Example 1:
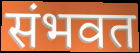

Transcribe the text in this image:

संभवत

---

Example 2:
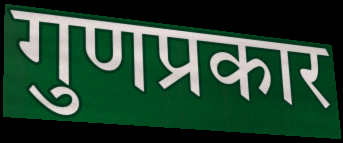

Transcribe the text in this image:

गुणप्रकार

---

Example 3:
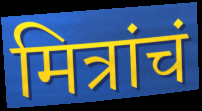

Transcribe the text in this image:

मित्रांचं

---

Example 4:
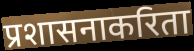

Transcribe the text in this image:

प्रशासनाकरिता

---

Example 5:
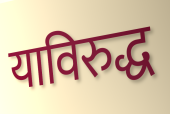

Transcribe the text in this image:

याविरुद्ध